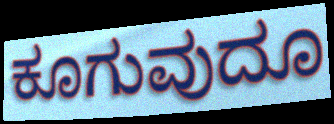
ಕೂಗುವುದೂ